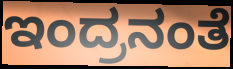
ಇಂದ್ರನಂತೆ